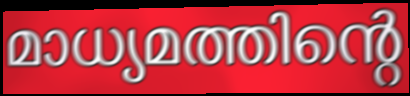
മാധ്യമത്തിന്റെ